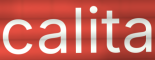
calita